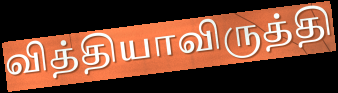
வித்தியாவிருத்தி